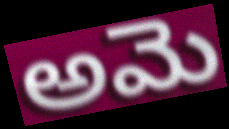
అమె